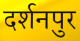
दर्शनपुर